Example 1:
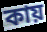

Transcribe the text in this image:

কায়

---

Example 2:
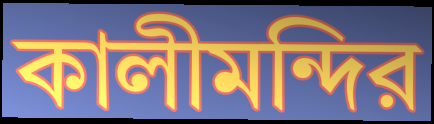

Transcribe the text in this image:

কালীমন্দির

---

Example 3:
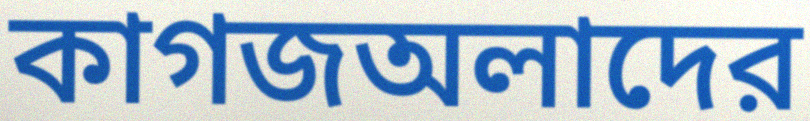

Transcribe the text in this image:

কাগজঅলাদের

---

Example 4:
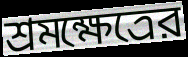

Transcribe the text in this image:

শ্রমক্ষেত্রের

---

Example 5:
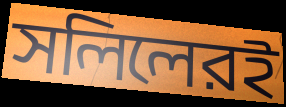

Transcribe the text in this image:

সলিলেরই